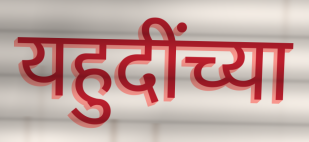
यहुदींच्या